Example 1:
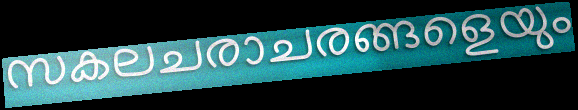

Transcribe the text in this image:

സകലചരാചരങ്ങളെയും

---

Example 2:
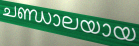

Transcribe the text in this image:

ചണ്ഡാലയായ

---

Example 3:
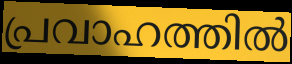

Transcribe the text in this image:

പ്രവാഹത്തിൽ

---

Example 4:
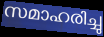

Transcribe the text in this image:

സമാഹരിച്ചു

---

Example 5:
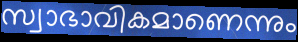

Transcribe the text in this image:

സ്വാഭാവികമാണെന്നും